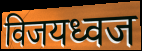
विजयध्वज